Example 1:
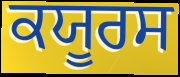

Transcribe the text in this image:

ਕਯੂਰਸ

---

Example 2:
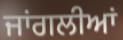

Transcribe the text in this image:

ਜਾਂਗਲੀਆਂ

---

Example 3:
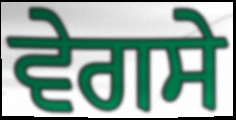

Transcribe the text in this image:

ਵੇਗਸੇ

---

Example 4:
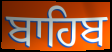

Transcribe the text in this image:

ਬਾਹਿਬ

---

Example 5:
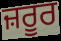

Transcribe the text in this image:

ਜ਼ਰੂਰ